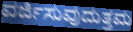
ವರ್ಜಿಸುವುದುತ್ತಮ